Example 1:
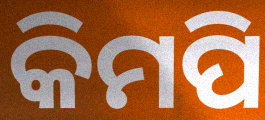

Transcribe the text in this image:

କିମପି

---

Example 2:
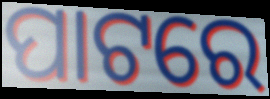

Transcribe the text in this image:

ପାଟରେ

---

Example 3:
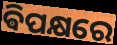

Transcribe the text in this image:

ଵିପକ୍ଷରେ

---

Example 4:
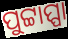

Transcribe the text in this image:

ପୁଟ୍ଟାପ୍ପା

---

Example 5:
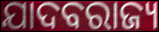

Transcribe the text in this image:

ଯାଦବରାଜ୍ୟ